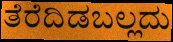
ತೆರೆದಿಡಬಲ್ಲದು